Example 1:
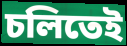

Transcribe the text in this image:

চলিতেই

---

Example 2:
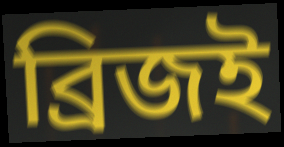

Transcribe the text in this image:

ব্রিজই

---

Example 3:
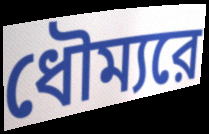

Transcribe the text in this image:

ধৌম্যরে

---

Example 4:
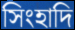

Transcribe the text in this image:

সিংহাদি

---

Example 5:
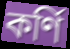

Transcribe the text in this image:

কর্ণি